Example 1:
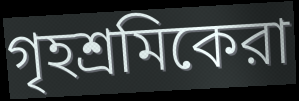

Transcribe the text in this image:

গৃহশ্রমিকেরা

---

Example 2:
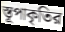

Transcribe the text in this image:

স্তূপাকৃতির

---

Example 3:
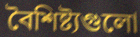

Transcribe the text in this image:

বৈশিষ্ট্যগুলো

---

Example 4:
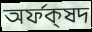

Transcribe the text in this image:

অর্ফক্‌ষদ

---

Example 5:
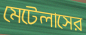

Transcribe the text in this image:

মেটেলাসের